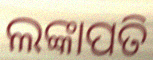
ଲଙ୍କାପତି